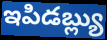
ఇపిడబ్ల్యు